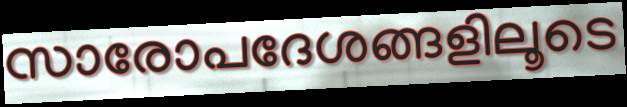
സാരോപദേശങ്ങളിലൂടെ